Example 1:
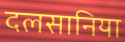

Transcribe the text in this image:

दलसानिया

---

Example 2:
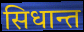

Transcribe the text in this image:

सिधान्त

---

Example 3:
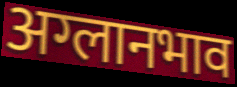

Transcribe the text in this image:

अग्लानभाव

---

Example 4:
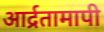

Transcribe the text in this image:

आर्द्रतामापी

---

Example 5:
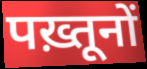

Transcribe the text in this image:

पख़्तूनों